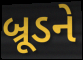
બ્રૂડને